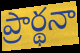
ప్రార్థనా